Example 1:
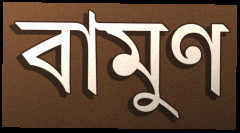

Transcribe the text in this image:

বামুণ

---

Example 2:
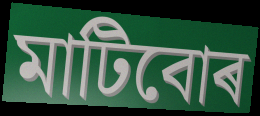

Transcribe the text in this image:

মাটিবোৰ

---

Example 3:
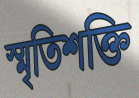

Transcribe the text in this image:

স্মৃতিশক্তি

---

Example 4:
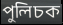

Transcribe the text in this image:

পুলিচক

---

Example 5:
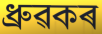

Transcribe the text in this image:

ধ্ৰুৱকৰ